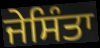
ਜੇਸਿੰਤਾ